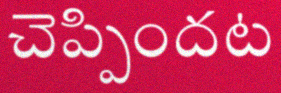
చెప్పిందట